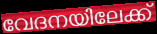
വേദനയിലേക്ക്